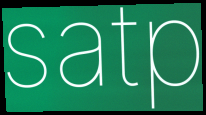
satp